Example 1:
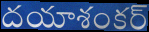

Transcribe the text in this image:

దయాశంకర్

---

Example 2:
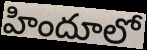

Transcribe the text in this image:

హిందూలో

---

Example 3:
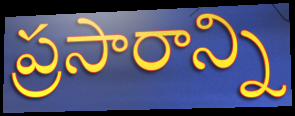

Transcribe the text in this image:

ప్రసారాన్ని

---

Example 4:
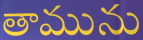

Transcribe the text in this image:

తామును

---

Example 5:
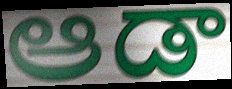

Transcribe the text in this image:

ఆడా